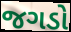
જગડો